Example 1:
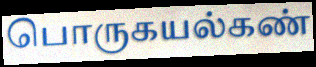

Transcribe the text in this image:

பொருகயல்கண்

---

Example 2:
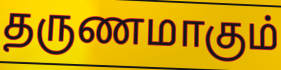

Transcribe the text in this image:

தருணமாகும்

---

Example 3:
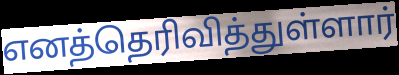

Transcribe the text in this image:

எனத்தெரிவித்துள்ளார்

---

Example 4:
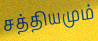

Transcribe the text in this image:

சத்தியமும்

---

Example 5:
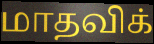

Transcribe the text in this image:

மாதவிக்